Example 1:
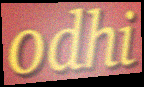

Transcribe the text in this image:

odhi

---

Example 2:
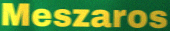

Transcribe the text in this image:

Meszaros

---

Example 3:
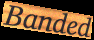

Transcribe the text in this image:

Banded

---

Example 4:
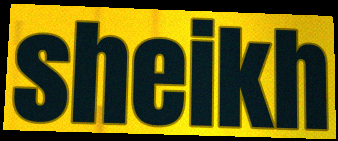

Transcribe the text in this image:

sheikh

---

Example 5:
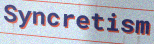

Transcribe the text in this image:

Syncretism